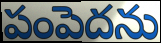
పంపెదను